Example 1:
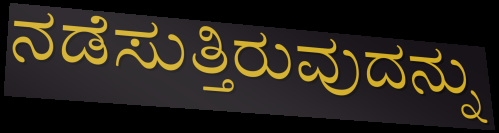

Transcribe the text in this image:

ನಡೆಸುತ್ತಿರುವುದನ್ನು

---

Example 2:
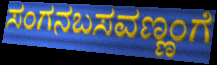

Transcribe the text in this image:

ಸಂಗನಬಸವಣ್ಣಂಗೆ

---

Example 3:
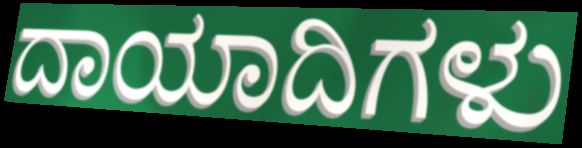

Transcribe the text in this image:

ದಾಯಾದಿಗಳು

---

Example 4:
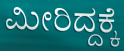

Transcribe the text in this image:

ಮೀರಿದ್ದಕ್ಕೆ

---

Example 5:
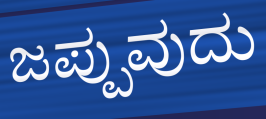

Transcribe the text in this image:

ಜಪ್ಪುವುದು